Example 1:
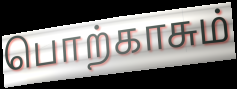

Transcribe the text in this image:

பொற்காசும்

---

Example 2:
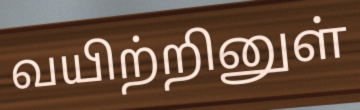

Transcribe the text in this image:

வயிற்றினுள்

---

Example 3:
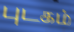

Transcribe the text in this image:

புடகம்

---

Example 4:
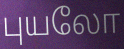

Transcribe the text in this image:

புயலோ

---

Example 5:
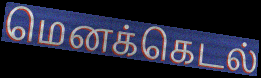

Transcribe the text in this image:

மெனக்கெடல்